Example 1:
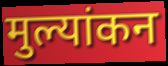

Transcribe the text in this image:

मुल्यांकन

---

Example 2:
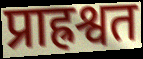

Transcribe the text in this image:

प्राह्रश्वत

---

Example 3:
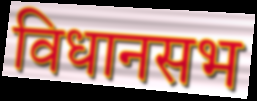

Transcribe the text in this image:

विधानसभ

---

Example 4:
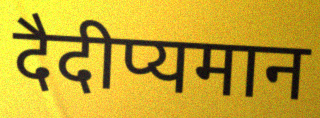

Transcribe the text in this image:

दैदीप्यमान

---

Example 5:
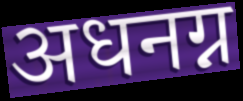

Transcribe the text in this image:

अधनग्न